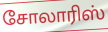
சோலாரிஸ்